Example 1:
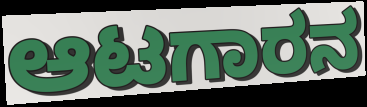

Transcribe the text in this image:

ಆಟಗಾರನ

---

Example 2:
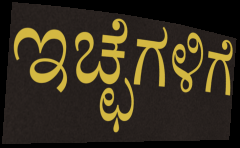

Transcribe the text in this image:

ಇಚ್ಛೆಗಳಿಗೆ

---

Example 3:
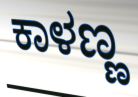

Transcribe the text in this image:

ಕಾಳಣ್ಣ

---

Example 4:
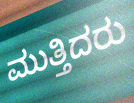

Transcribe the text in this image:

ಮುತ್ತಿದರು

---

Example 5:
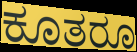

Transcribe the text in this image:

ಕೂತರೂ